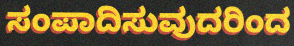
ಸಂಪಾದಿಸುವುದರಿಂದ